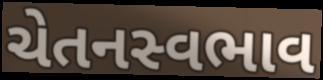
ચેતનસ્વભાવ